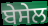
ਬੇਸੇਲ